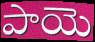
పాయె